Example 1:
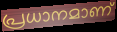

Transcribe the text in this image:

പ്രധാനമാണ്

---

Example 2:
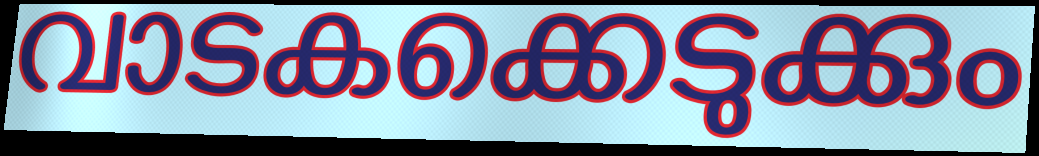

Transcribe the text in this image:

വാടകക്കെടുക്കും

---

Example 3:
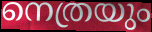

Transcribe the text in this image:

നെത്രയും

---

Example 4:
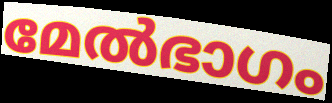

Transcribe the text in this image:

മേൽഭാഗം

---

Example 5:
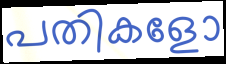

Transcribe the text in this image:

പതികളോ